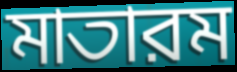
মাতারম